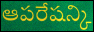
ఆపరేషన్కి